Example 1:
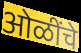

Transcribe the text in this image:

ओळींचे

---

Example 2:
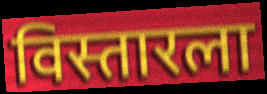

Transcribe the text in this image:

विस्तारला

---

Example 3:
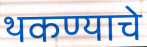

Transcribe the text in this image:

थकण्याचे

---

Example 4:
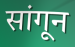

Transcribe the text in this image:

सांगून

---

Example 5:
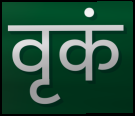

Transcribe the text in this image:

वृकं